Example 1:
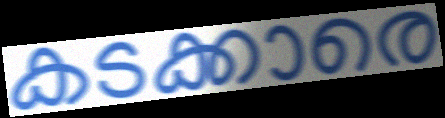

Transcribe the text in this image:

കടക്കാരെ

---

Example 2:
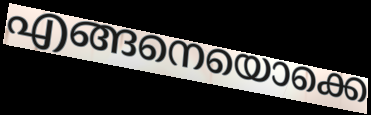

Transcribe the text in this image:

എങ്ങനെയൊക്കെ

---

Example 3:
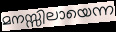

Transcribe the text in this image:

മനസ്സിലായെന്ന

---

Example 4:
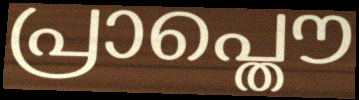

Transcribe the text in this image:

പ്രാപ്തൌ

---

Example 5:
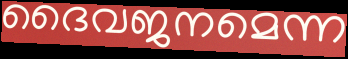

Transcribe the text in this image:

ദൈവജനമെന്ന